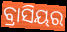
ବ୍ରାସିୟର